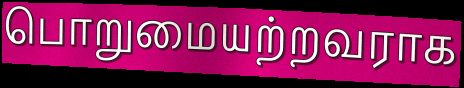
பொறுமையற்றவராக